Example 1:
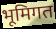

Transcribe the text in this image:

भूमिगत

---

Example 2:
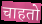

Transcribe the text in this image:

चाहतो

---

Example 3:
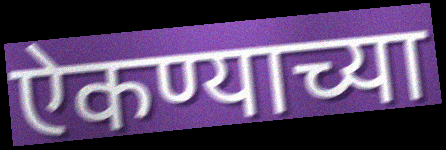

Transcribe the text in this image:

ऐकण्याच्या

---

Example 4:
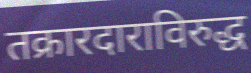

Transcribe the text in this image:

तक्रारदाराविरुद्ध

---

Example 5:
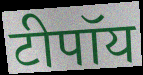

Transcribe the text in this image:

टीपॉय